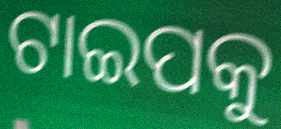
ଟାଇପକୁ